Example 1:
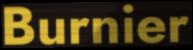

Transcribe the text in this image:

Burnier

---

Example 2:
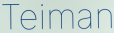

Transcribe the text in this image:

Teiman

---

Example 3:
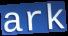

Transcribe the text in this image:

ark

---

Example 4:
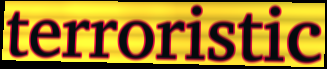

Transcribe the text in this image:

terroristic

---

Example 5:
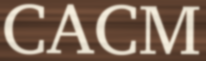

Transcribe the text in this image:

CACM